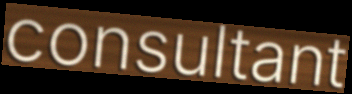
consultant